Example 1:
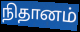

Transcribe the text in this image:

நிதானம்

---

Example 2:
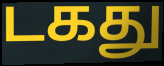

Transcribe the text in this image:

டகது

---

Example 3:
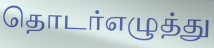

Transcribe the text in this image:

தொடர்எழுத்து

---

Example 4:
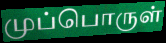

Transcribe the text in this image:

முப்பொருள்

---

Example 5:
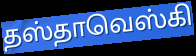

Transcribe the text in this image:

தஸ்தாவெஸ்கி